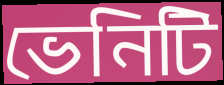
ভেনিটি